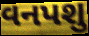
વનપશુ